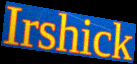
Irshick